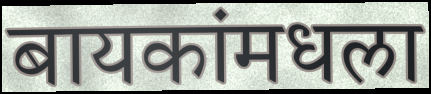
बायकांमधला